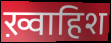
ख़्वाहिश